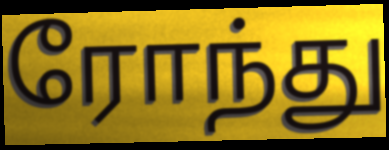
ரோந்து